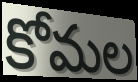
కోమల